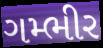
ગમ્ભીર